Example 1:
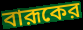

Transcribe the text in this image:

বারূকের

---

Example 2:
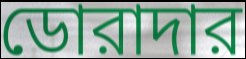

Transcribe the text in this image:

ডোরাদার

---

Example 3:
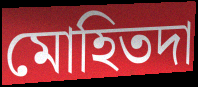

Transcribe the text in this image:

মোহিতদা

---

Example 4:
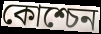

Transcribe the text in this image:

কোশ্চেন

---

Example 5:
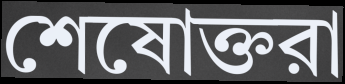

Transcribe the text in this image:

শেষোক্তরা